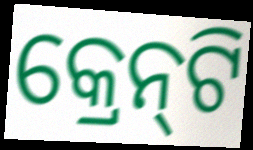
କ୍ରେନ୍‍ଟି